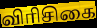
விரிசிகை